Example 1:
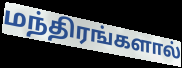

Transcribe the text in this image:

மந்திரங்களால்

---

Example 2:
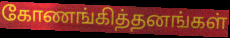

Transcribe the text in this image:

கோணங்கித்தனங்கள்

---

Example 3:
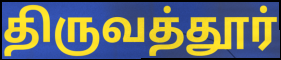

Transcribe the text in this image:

திருவத்தூர்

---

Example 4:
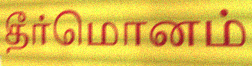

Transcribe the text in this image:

தீர்மொனம்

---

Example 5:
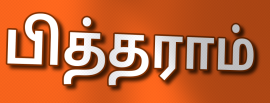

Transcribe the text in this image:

பித்தராம்